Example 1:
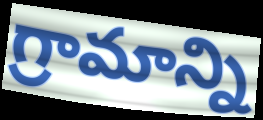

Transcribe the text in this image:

గ్రామాన్ని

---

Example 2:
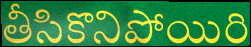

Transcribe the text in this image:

తీసికొనిపోయిరి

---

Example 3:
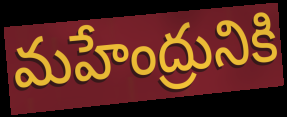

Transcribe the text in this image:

మహేంద్రునికి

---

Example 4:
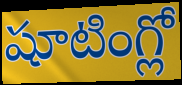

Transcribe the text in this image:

షూటింగ్లో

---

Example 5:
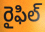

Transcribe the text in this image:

రైఫిల్